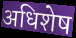
अधिशेष